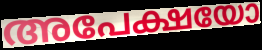
അപേക്ഷയോ